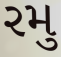
રમુ